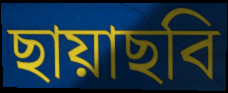
ছায়াছবি